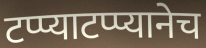
टप्प्याटप्प्यानेच